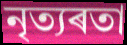
নৃত্যৰতা